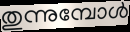
തുന്നുമ്പോൾ